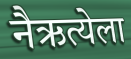
नैऋत्येला